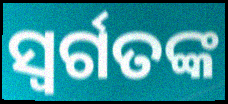
ସ୍ୱର୍ଗତଙ୍କ